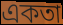
একতা